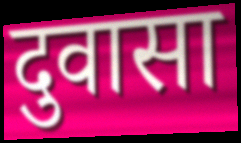
दुवासा